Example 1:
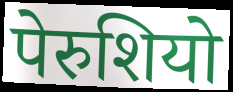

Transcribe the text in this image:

पेरुशियो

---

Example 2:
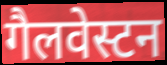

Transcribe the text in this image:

गैलवेस्टन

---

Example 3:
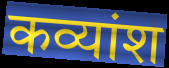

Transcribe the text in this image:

कव्यांश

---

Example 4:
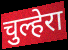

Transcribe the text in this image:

चुल्हेरा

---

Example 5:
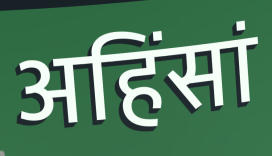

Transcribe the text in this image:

अहिंसां